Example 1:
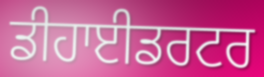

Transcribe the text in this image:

ਡੀਹਾਈਡਰਟਰ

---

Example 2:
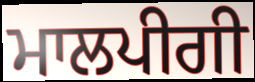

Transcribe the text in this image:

ਮਾਲਪੀਗੀ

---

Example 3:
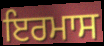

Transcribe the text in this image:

ਇਰਮਾਸ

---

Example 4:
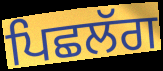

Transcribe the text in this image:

ਪਿਛਲੱਗ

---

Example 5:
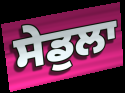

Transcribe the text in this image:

ਸੇਡੁਲਾ